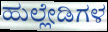
ಹುಲ್ಲೇಡಿಗಳ